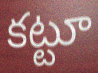
కట్టూ